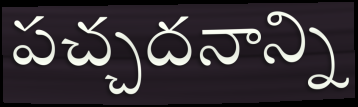
పచ్చదనాన్ని